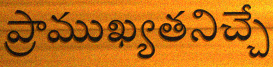
ప్రాముఖ్యతనిచ్చే